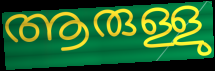
ആരുള്ളു